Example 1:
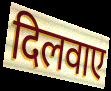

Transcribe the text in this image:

दिलवाए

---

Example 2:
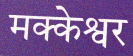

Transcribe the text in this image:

मक्केश्वर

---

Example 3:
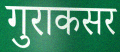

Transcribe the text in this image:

गुराकसर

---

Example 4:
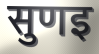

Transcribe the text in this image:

सुणइ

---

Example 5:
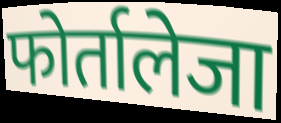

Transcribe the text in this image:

फोर्तालेजा